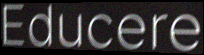
Educere